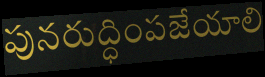
పునరుద్ధింపజేయాలి